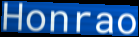
Honrao